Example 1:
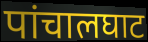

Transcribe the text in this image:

पांचालघाट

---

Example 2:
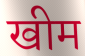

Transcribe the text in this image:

खीम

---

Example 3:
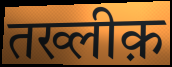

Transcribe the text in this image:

तख्लीक़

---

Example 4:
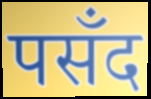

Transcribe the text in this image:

पसँद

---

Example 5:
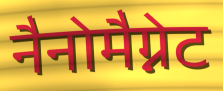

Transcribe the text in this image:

नैनोमैग्नेट